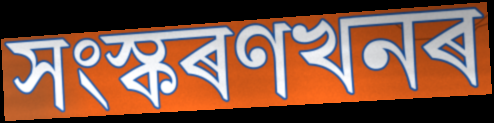
সংস্কৰণখনৰ